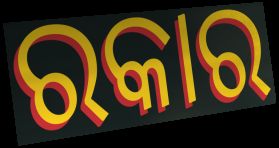
ରକାର